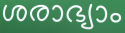
ശരാഭ്യാം